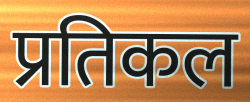
प्रतिकल